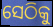
ସେଠିକୁ